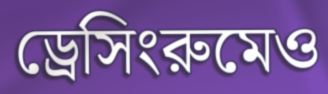
ড্রেসিংরুমেও